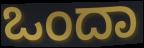
ಒಂದಾ